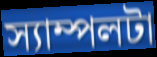
স্যাম্পলটা